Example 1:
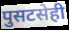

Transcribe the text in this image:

पुसटसेही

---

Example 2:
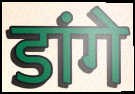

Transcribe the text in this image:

डांगे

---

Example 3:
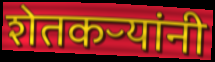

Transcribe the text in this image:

शेतकऱ्यांनी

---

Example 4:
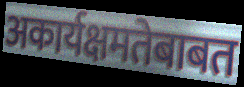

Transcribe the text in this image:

अकार्यक्षमतेबाबत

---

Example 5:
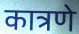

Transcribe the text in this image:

कात्रणे